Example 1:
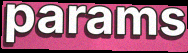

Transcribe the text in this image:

params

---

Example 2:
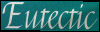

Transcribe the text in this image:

Eutectic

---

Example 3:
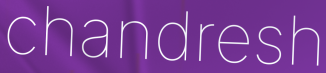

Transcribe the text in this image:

chandresh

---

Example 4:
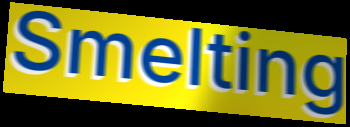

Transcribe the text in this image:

Smelting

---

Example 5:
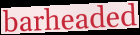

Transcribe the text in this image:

barheaded